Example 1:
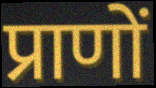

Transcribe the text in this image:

प्राणों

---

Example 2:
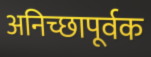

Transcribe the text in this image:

अनिच्छापूर्वक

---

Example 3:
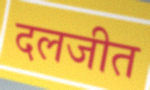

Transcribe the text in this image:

दलजीत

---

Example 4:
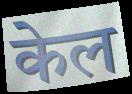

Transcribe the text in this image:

केल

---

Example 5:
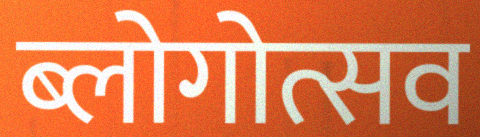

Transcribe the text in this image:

ब्लोगोत्सव